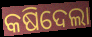
କଷିଦେଲା